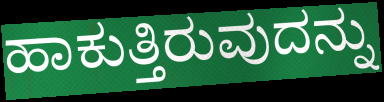
ಹಾಕುತ್ತಿರುವುದನ್ನು